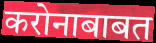
करोनाबाबत